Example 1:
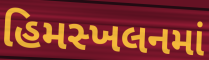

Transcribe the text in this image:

હિમસ્ખલનમાં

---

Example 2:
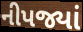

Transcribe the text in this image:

નીપજ્યાં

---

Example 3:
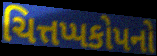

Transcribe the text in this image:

ચિત્તપ્પકોપનો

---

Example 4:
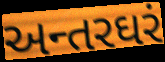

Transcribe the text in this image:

અન્તરઘરં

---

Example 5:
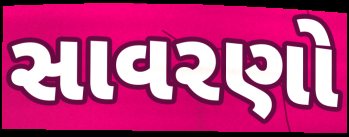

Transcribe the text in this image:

સાવરણો